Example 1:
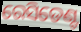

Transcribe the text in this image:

ରେସିଡେଣ୍ଟ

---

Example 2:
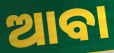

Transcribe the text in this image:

ଆବା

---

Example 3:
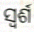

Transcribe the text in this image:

ସ୍ୱର୍ଶ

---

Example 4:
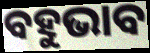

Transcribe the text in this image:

ବହୁଭାବ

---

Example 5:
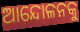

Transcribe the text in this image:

ଆନ୍ଦୋଳନକୁ